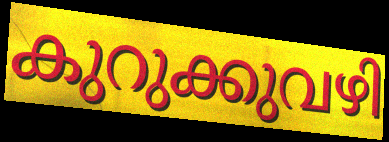
കുറുക്കുവഴി